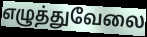
எழுத்துவேலை